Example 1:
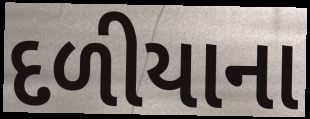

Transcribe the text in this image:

દળીયાના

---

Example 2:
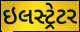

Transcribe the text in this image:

ઇલસ્ટ્રેટર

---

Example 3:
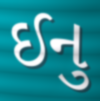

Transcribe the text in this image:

ઈનુ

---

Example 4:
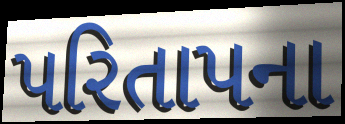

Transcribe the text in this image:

પરિતાપના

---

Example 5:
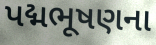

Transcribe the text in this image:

પદ્મભૂષણના